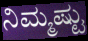
ನಿಮ್ಮಷ್ಟು